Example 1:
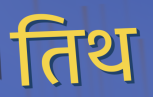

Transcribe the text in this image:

तिथ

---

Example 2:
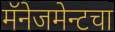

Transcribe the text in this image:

मॅनेजमेन्टचा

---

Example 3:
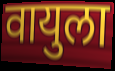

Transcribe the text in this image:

वायुला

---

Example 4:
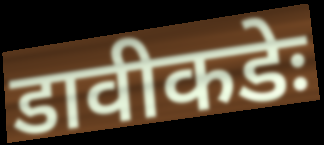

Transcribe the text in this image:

डावीकडेः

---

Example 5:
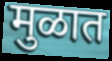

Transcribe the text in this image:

मुळात